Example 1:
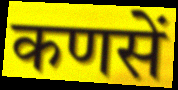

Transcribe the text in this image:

कणसें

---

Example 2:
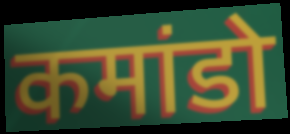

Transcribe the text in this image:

कमांडो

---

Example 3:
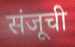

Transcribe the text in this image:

संजूची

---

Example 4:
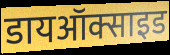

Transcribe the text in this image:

डायऑक्साइड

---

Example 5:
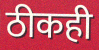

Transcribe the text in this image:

ठीकही